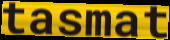
tasmat